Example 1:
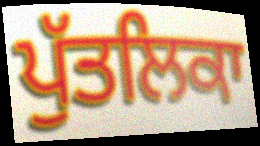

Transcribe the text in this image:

ਪੁੱਤਲਿਕਾ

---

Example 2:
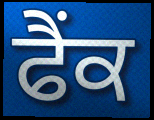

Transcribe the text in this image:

ਫੈਂਕ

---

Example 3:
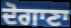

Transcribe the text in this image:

ਦੋਗਾਣਾ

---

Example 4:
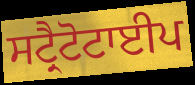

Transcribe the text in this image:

ਸਟ੍ਰੈਟੋਟਾਈਪ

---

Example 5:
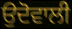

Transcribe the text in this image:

ਉਦੋਵਾਲੀ